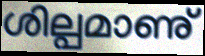
ശില്പമാണു്